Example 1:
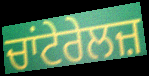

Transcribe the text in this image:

ਚਾਂਟੇਰੇਲਜ਼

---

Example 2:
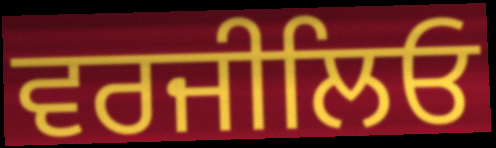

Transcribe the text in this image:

ਵਰਜੀਲਿਓ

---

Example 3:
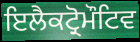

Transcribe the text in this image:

ਇਲੈਕਟ੍ਰੋਮੌਟਿਵ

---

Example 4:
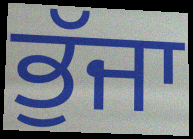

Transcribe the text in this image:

ਭੁੱਜਾ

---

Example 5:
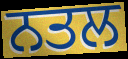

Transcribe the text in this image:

ਨਤਲ